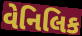
વેનિલિક